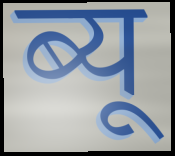
ब्यू